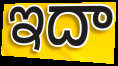
ఇదా